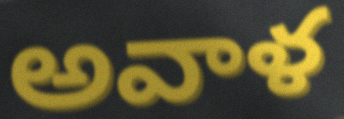
అవాళ